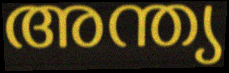
അന്ത്യ